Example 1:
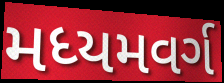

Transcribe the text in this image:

મધ્યમવર્ગ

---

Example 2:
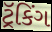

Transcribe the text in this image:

ટ્રૅકિંગ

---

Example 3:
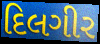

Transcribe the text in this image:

દિલગીર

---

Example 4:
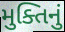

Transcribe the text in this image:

મુક્તિનું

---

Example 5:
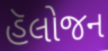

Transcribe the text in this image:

હૅલોજન